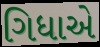
ગિધાએ